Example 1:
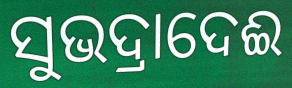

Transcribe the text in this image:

ସୁଭଦ୍ରାଦେଈ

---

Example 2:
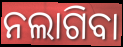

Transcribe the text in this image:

ନଲାଗିବା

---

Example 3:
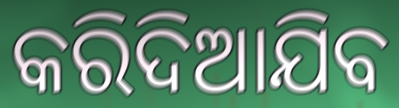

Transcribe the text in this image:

କରିଦିଆଯିବ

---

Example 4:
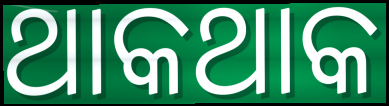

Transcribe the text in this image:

ଥାକଥାକ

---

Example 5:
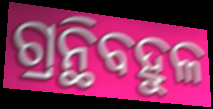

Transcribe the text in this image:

ଗ୍ରନ୍ଥିବହୁଳ